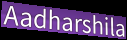
Aadharshila